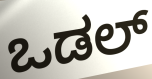
ಒಡಲ್